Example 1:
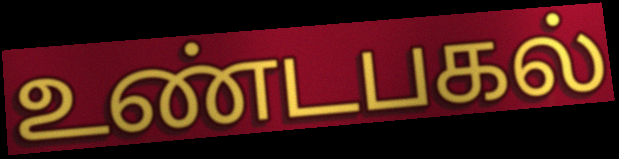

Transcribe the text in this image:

உண்டபகல்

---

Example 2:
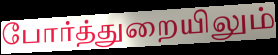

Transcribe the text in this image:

போர்த்துறையிலும்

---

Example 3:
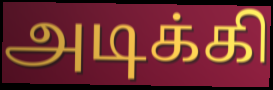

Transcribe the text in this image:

அடிக்கி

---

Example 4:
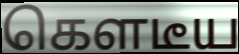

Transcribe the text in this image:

கௌடீய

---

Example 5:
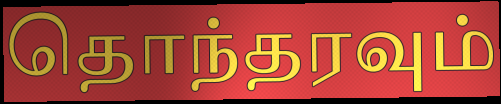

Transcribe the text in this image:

தொந்தரவும்